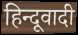
हिन्दूवादी